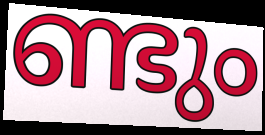
ണ്ടും